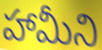
హామీని